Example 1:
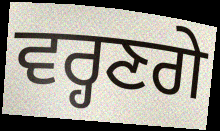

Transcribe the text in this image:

ਵਰ੍ਹਣਗੇ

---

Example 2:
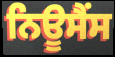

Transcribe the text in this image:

ਨਿਊਸੈਂਸ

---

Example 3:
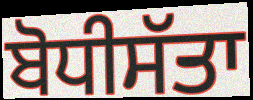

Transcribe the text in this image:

ਬੋਧੀਸੱਤਾ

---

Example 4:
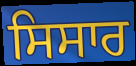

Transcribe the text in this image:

ਸਿਸਾਰ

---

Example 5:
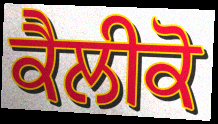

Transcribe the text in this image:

ਕੈਲੀਕੋ